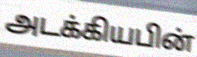
அடக்கியபின்